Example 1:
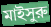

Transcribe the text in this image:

মাইসুরু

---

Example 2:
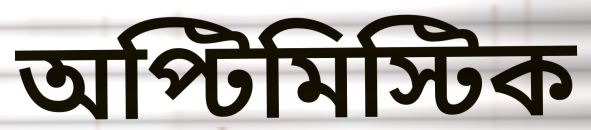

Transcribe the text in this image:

অপ্টিমিস্টিক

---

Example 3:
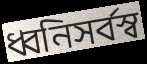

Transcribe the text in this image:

ধ্বনিসর্বস্ব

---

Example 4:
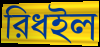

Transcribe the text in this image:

রিধইল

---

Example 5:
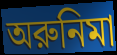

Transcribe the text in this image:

অরুনিমা